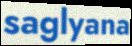
saglyana